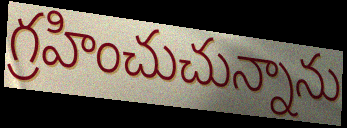
గ్రహించుచున్నాను